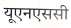
यूएनएससी